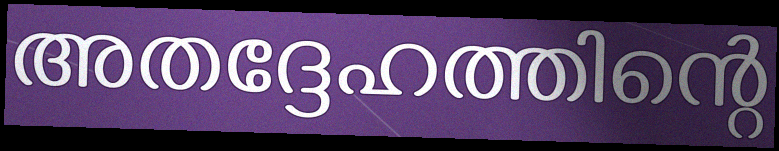
അതദ്ദേഹത്തിന്റെ